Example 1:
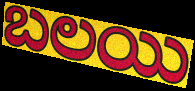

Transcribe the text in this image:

బలయి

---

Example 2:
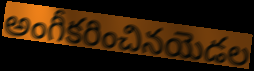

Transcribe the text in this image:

అంగీకరించినయెడల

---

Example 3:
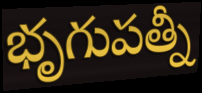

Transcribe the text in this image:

భృగుపత్నీ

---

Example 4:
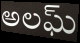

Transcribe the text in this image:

అలఘ్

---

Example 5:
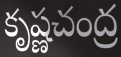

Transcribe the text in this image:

కృష్ణచంద్ర